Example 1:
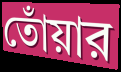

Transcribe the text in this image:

তোঁয়ার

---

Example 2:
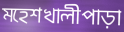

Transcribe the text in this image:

মহেশখালীপাড়া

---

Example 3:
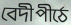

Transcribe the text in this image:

বেদীপীঠে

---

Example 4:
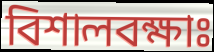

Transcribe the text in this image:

বিশালবক্ষাঃ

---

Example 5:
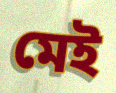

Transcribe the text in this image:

মেই